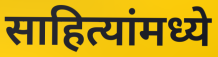
साहित्यांमध्ये